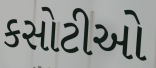
કસોટીઓ